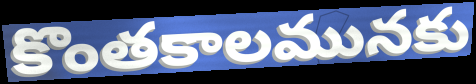
కొంతకాలమునకు